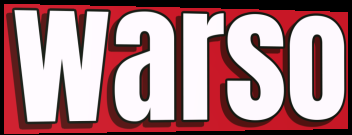
warso